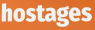
hostages